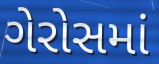
ગેરોસમાં